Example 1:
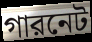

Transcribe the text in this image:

গারনেট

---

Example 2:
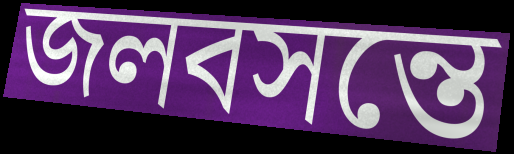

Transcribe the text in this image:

জলবসন্তে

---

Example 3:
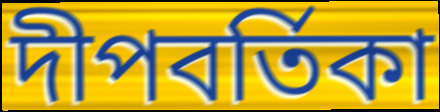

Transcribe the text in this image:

দীপবর্তিকা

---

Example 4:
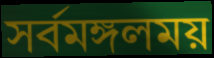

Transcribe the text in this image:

সর্বমঙ্গলময়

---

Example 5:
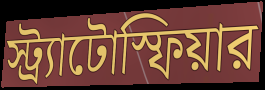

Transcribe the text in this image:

স্ট্র্যাটোস্ফিয়ার